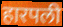
हारपली